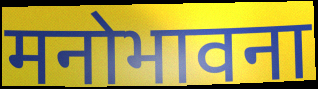
मनोभावना